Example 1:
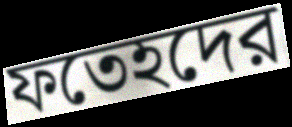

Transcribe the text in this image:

ফতেহদের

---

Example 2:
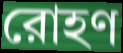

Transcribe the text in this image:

রোহণ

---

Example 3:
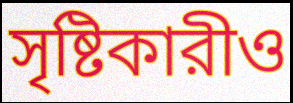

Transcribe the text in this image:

সৃষ্টিকারীও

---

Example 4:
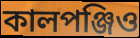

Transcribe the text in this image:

কালপঞ্জিও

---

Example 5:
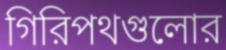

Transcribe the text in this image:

গিরিপথগুলোর